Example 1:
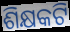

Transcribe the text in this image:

ଶିକ୍ଷକଟି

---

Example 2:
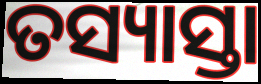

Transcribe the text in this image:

ତସ୍ୟାସ୍ତା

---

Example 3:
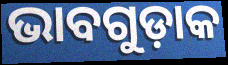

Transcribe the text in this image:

ଭାବଗୁଡ଼ାକ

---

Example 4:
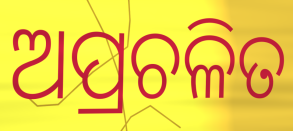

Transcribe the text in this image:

ଅପ୍ରଚଳିତ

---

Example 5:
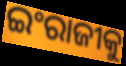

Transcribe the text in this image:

ଇଂରାଜୀକୁ